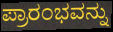
ಪ್ರಾರಂಭವನ್ನು